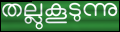
തല്ലുകൂടുന്നു